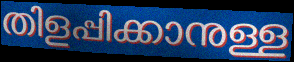
തിളപ്പിക്കാനുള്ള